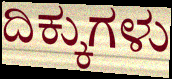
ದಿಕ್ಕುಗಳು